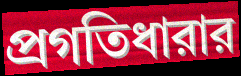
প্রগতিধারার